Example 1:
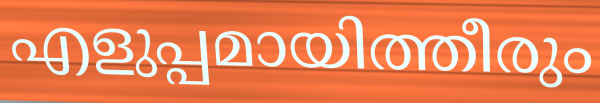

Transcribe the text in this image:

എളുപ്പമായിത്തീരും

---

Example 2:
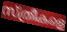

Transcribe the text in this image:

സ്ത്രീകളെ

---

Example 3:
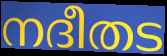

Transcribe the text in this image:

നദീതട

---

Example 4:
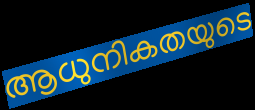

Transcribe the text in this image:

ആധുനികതയുടെ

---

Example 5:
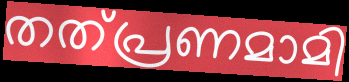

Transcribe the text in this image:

തത്പ്രണമാമി